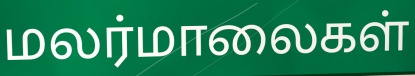
மலர்மாலைகள்